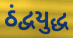
ઠંદ્વયુદ્ધ